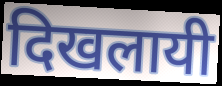
दिखलायी